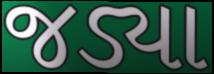
જડ્યા